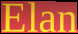
Elan